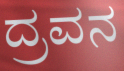
ದ್ರವನ